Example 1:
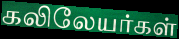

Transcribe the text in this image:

கலிலேயர்கள்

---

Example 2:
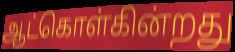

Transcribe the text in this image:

ஆட்கொள்கின்றது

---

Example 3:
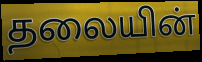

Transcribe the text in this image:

தலையின்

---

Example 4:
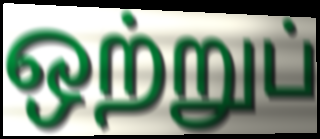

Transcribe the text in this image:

ஒற்றுப்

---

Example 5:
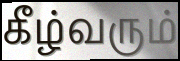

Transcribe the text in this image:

கீழ்வரும்